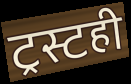
ट्रस्टही